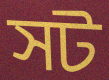
সট